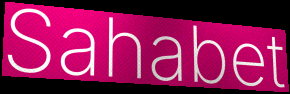
Sahabet